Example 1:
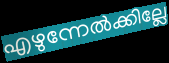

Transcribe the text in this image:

എഴുന്നേൽക്കില്ലേ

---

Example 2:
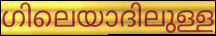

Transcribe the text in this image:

ഗിലെയാദിലുള്ള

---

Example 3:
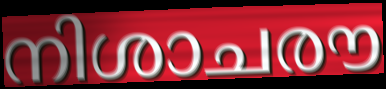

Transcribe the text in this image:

നിശാചരൗ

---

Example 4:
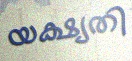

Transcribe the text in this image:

യക്ഷ്യതി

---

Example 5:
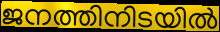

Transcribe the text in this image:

ജനത്തിനിടയിൽ